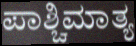
ಪಾಶ್ಚಿಮಾತ್ಯ